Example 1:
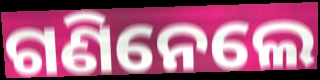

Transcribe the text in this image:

ଗଣିନେଲେ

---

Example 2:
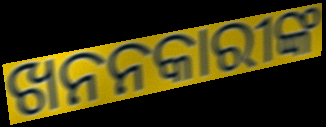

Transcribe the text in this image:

ଖନନକାରୀଙ୍କ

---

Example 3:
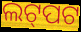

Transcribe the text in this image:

ଲଟ୍‌ପଟ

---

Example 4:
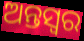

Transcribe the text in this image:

ଅନ୍ତସ୍ୱର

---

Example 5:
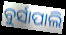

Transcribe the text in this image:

ବୁର୍ସାପାଲି